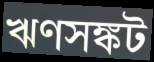
ঋণসঙ্কট